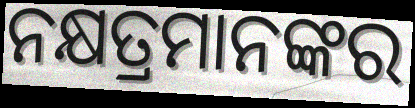
ନକ୍ଷତ୍ରମାନଙ୍କର